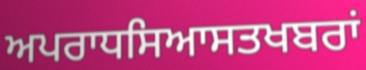
ਅਪਰਾਧਸਿਆਸਤਖਬਰਾਂ